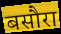
बसौरा